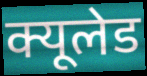
क्यूलेड